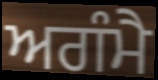
ਅਗੰਮੈ